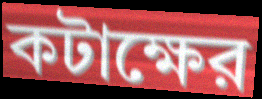
কটাক্ষের